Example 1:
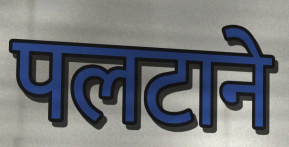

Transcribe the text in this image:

पलटाने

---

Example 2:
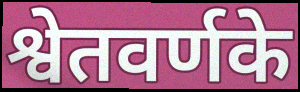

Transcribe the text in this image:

श्वेतवर्णके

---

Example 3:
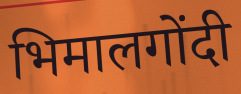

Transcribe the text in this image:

भिमालगोंदी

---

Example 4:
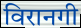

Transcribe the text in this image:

विरानगी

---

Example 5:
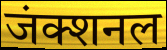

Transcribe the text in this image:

जंक्शनल